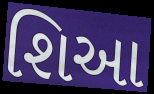
શિઆ